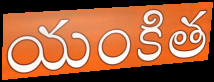
యంకిత